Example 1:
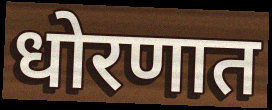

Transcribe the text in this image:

धोरणात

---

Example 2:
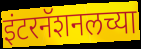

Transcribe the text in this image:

इंटरनॅशनलच्या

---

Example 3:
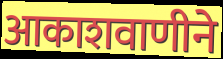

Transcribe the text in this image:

आकाशवाणीने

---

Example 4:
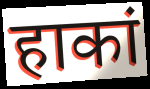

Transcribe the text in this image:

हाकां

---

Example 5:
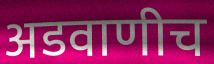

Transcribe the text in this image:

अडवाणीच